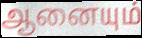
ஆனையும்